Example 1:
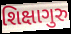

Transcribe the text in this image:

શિક્ષાગુરુ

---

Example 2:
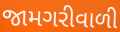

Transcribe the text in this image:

જામગરીવાળી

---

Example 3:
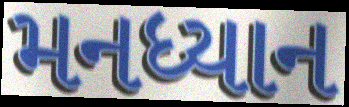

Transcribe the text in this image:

મનધ્યાન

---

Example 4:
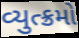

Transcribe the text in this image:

વ્યુત્ક્રમો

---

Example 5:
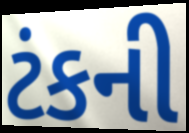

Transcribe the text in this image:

ટંકની